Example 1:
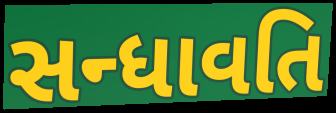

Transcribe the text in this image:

સન્ધાવતિ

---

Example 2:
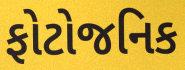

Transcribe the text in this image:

ફોટોજનિક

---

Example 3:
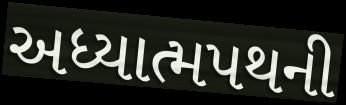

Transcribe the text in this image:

અધ્યાત્મપથની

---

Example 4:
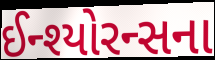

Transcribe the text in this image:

ઈન્શ્યોરન્સના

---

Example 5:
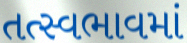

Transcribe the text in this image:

તત્સ્વભાવમાં